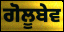
ਗੋਲੂਬੇਵ